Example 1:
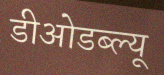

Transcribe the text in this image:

डीओडब्ल्यू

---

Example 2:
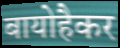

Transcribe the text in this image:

बायोहैकर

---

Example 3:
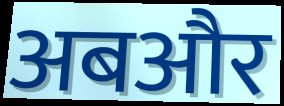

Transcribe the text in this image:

अबऔर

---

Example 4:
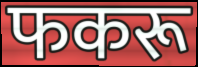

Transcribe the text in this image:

फकरू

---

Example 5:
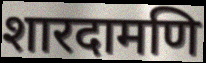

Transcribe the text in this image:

शारदामणि